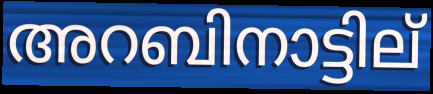
അറബിനാട്ടില്